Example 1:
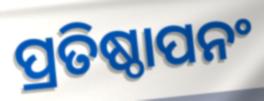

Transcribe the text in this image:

ପ୍ରତିଷ୍ଠାପନଂ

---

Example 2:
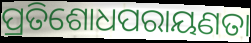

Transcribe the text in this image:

ପ୍ରତିଶୋଧପରାୟଣତା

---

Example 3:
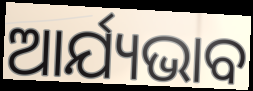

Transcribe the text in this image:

ଆର୍ଯ୍ୟଭାବ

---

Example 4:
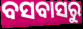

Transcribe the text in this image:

ବସବାସରୁ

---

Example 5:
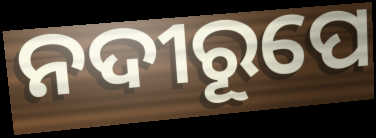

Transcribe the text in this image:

ନଦୀରୂପେ